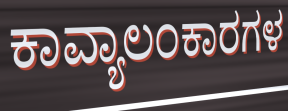
ಕಾವ್ಯಾಲಂಕಾರಗಳ